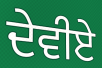
ਦੇਵੀਏ